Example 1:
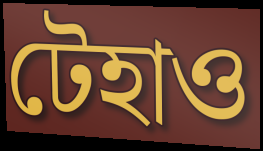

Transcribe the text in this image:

টেহাও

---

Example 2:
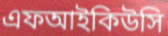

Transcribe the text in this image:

এফআইকিউসি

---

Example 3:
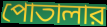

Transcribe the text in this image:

পোতালার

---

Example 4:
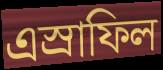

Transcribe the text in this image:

এস্রাফিল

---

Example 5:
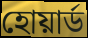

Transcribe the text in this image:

হোয়ার্ড